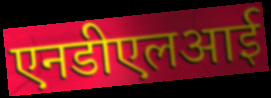
एनडीएलआई